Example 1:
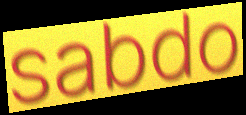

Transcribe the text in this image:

sabdo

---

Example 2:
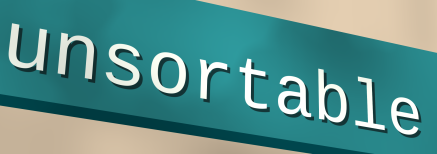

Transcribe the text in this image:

unsortable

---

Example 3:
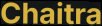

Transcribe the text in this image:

Chaitra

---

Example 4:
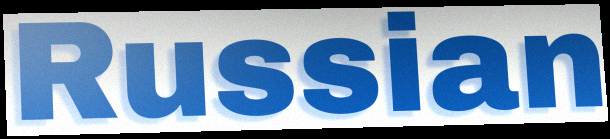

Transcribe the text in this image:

Russian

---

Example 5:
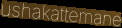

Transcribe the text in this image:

ushakattemane